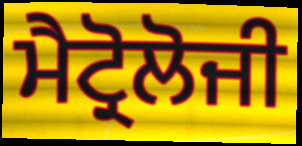
ਮੈਟ੍ਰੋਲੋਜੀ